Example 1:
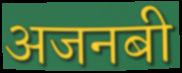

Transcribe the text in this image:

अजनबी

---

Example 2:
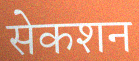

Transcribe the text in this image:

सेकशन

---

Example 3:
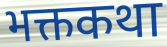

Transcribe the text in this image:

भक्तकथा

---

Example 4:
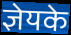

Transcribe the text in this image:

ज्ञेयके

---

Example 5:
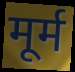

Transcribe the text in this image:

मूर्म